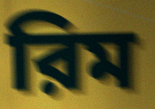
রিম